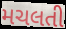
મચલતી